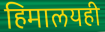
हिमालयही